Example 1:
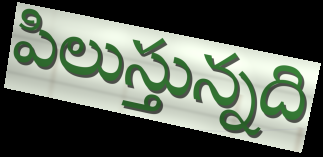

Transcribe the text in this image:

పిలుస్తున్నది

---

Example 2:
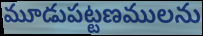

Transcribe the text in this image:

మూడుపట్టణములను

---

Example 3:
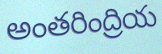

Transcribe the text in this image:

అంతరింద్రియ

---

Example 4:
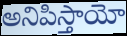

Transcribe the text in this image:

అనిపిస్తాయో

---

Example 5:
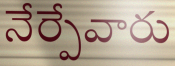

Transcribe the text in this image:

నేర్పేవారు